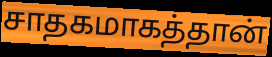
சாதகமாகத்தான்